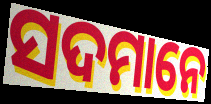
ସଦମାନେ